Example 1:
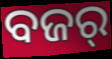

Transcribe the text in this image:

ବଜର୍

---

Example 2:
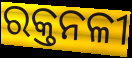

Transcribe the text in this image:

ରକ୍ତନଳୀ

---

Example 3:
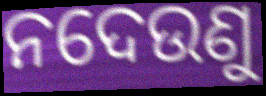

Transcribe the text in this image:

ନଦେଉଣୁ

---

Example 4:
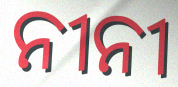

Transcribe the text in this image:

ନୀନୀ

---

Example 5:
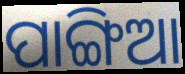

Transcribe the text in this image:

ପାଙ୍ଗିଆ